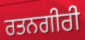
ਰਤਨਗੀਰੀ